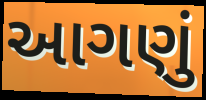
આગણું